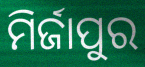
ମିର୍ଜାପୁର